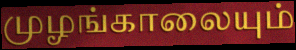
முழங்காலையும்